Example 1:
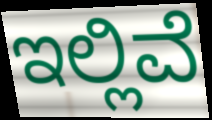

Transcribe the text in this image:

ಇಲ್ಲಿವೆ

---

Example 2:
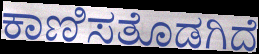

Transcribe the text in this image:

ಕಾಣಿಸತೊಡಗಿದೆ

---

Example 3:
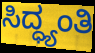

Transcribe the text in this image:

ಸಿದ್ಧ್ಯಂತಿ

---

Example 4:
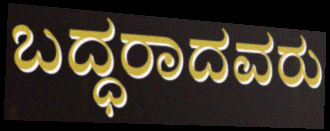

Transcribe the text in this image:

ಬದ್ಧರಾದವರು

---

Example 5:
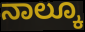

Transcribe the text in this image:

ನಾಲ್ಕೂ